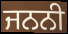
ਜਨਨੀ